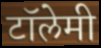
टॉलेमी